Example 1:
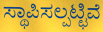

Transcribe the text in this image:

ಸ್ಥಾಪಿಸಲ್ಪಟ್ಟಿವೆ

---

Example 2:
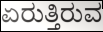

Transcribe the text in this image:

ಏರುತ್ತಿರುವ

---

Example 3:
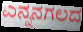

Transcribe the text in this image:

ಎನ್ನನಗಲದ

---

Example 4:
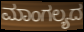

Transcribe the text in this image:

ಮಾಂಗಲ್ಯದ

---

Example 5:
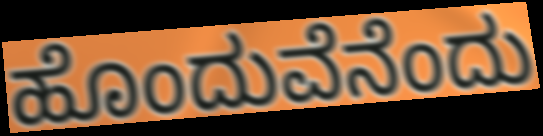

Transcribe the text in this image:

ಹೊಂದುವೆನೆಂದು